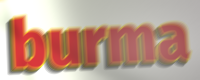
burma